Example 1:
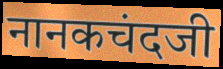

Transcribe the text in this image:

नानकचंदजी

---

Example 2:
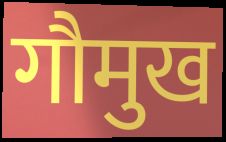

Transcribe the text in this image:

गौमुख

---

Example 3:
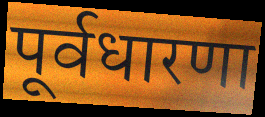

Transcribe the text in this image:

पूर्वधारणा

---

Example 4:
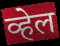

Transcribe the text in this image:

व्हेल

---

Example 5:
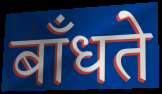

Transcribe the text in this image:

बाँधते